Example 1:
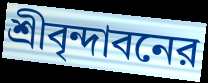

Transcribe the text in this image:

শ্রীবৃন্দাবনের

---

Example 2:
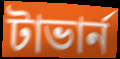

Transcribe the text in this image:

টাভার্ন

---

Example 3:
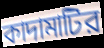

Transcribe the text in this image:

কাদামাটির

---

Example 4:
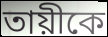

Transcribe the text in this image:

তায়ীকে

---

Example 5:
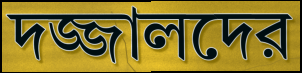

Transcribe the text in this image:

দজ্জালদের